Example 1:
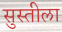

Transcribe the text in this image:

सुस्तीला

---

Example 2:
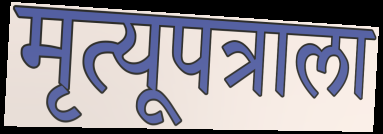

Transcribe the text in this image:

मृत्यूपत्राला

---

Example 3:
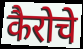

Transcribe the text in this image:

कैरोचे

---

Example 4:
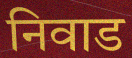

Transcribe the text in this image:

निवाड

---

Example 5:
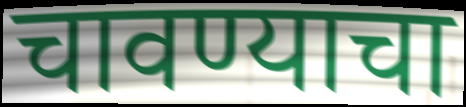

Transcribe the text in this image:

चावण्याचा